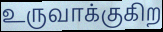
உருவாக்குகிற